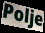
Polje